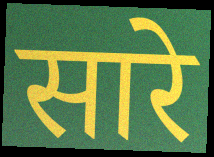
सारे